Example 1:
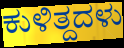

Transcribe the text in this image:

ಕುಳಿತ್ದದಳು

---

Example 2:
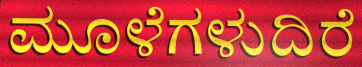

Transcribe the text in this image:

ಮೂಳೆಗಳುದಿರೆ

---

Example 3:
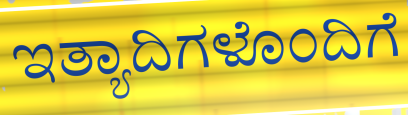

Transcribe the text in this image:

ಇತ್ಯಾದಿಗಳೊಂದಿಗೆ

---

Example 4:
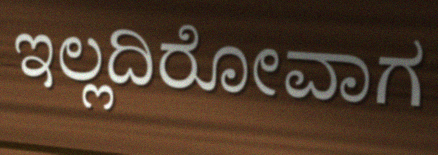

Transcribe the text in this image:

ಇಲ್ಲದಿರೋವಾಗ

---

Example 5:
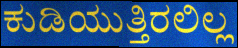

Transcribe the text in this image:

ಕುಡಿಯುತ್ತಿರಲಿಲ್ಲ